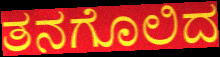
ತನಗೊಲಿದ